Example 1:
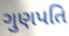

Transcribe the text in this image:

ગુણપતિ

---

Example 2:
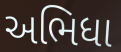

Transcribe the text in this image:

અભિધા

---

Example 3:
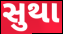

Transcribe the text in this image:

સુથા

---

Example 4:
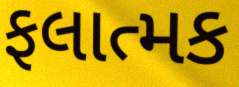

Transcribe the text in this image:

ફલાત્મક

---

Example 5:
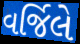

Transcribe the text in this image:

વર્જિલે